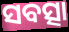
ସବତ୍ସା